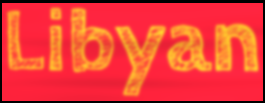
Libyan